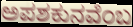
ಅಪಶಕುನವೆಂಬ